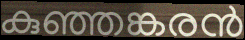
കുഞ്ഞങ്കരൻ